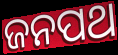
ଜନପଥ